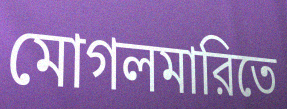
মোগলমারিতে